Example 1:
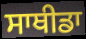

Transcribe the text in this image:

ਸਾਥੀਡਾ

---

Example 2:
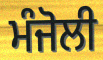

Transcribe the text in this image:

ਮੰਜੋਲੀ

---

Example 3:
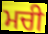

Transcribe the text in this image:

ਮਚੀ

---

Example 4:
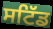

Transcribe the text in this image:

ਸਟਿੱਡ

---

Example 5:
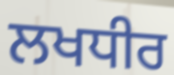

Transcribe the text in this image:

ਲਖਧੀਰ